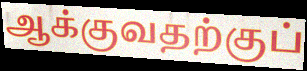
ஆக்குவதற்குப்